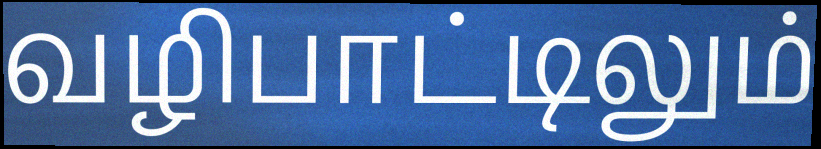
வழிபாட்டிலும்